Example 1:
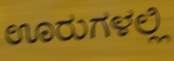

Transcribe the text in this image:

ಊರುಗಳಲ್ಲಿ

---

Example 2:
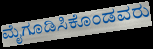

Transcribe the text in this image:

ಮೈಗೂಡಿಸಿಕೊಂಡವರು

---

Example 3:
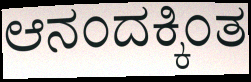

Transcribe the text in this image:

ಆನಂದಕ್ಕಿಂತ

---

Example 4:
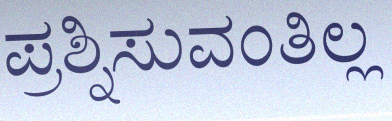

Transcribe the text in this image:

ಪ್ರಶ್ನಿಸುವಂತಿಲ್ಲ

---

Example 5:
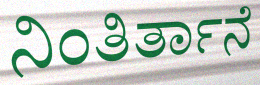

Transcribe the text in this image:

ನಿಂತಿರ್ತಾನೆ